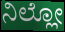
ನಿಲ್ಲೋ